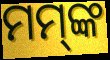
ମମ୍‌ଙ୍କ